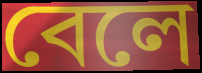
বেলে